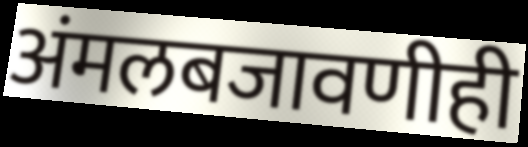
अंमलबजावणीही